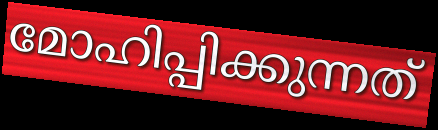
മോഹിപ്പിക്കുന്നത്